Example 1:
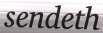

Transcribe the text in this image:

sendeth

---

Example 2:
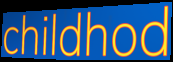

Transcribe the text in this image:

childhod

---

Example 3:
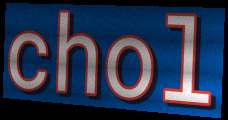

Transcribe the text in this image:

chol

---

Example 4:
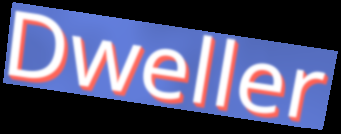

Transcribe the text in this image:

Dweller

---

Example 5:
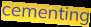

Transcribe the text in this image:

cementing